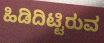
ಹಿಡಿದಿಟ್ಟಿರುವ